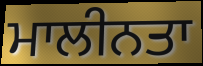
ਮਾਲੀਨਤਾ